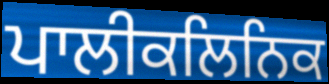
ਪਾਲੀਕਲਿਨਿਕ